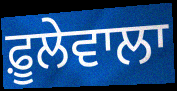
ਫ਼ੂਲੇਵਾਲਾ